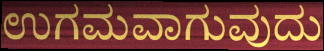
ಉಗಮವಾಗುವುದು